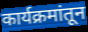
कार्यक्रमांतून